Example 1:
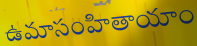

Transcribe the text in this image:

ఉమాసంహితాయాం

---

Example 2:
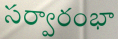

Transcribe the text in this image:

సర్వారంభా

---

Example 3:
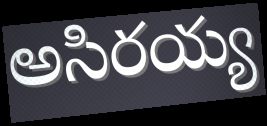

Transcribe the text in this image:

అసిరయ్య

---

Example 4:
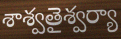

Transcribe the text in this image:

శాశ్వతైశ్వర్యా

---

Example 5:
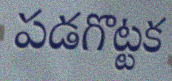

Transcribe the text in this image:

పడగొట్టక